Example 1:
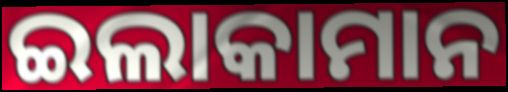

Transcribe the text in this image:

ଇଲାକାମାନ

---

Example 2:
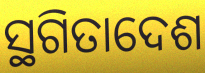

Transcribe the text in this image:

ସ୍ଥଗିତାଦେଶ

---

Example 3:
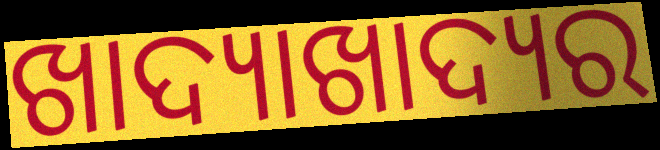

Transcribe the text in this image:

ଖାଦ୍ୟାଖାଦ୍ୟର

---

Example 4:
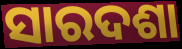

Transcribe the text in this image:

ସାରଦଶା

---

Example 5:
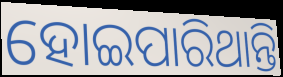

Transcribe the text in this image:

ହୋଇପାରିଥାନ୍ତି